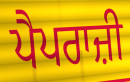
ਪੈਪਰਾਜ਼ੀ